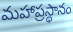
మహాప్రస్థానం